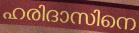
ഹരിദാസിനെ